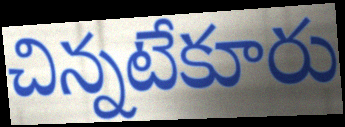
చిన్నటేకూరు